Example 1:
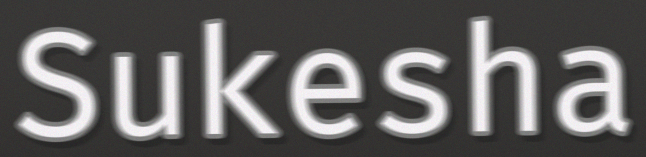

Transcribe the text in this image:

Sukesha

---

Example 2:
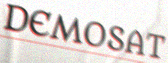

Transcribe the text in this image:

DEMOSAT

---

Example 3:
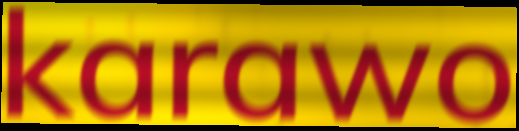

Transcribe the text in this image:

karawo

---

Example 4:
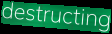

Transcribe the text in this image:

destructing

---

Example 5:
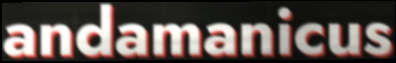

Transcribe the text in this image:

andamanicus